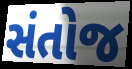
સંતોજ